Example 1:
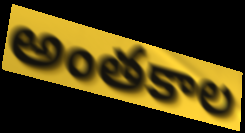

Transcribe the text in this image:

అంతకాల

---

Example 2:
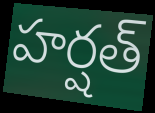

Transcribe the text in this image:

హర్షత్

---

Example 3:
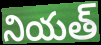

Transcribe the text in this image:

నియత్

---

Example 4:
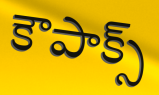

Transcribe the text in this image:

కౌపాక్స్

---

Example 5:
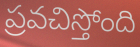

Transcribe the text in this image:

ప్రవచిస్తోంది